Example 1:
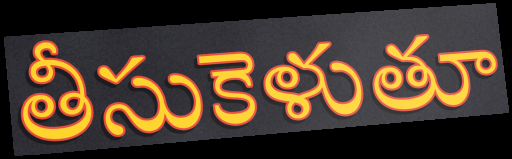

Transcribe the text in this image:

తీసుకెళుతూ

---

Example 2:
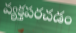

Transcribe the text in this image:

వ్యక్తపరచడం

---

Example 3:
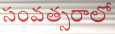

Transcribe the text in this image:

సంవత్సరాలో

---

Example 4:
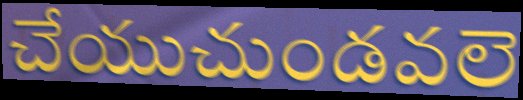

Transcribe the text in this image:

చేయుచుండవలె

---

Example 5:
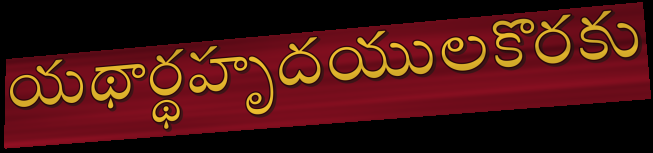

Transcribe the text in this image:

యథార్థహృదయులకొరకు